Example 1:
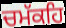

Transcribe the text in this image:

ਚਮੱਕਹਿ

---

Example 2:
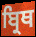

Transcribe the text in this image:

ਬ੍ਰਿਥ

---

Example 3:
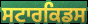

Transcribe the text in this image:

ਸਟਾਰਕਿਡਸ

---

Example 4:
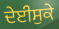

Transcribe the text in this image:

ਦੇਈਸੁਕੇ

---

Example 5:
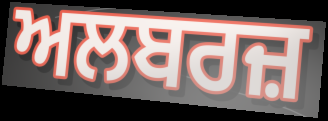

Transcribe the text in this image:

ਅਲਬਰਜ਼